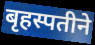
बृहस्पतीने